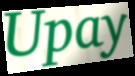
Upay